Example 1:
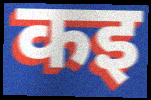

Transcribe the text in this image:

कइ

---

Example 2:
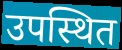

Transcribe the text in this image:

उपस्थित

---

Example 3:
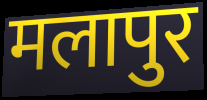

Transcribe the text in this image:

मलापुर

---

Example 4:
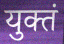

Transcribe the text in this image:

युक्तं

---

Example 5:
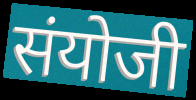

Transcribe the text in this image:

संयोजी